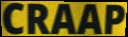
CRAAP